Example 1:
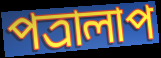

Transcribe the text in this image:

পত্ৰালাপ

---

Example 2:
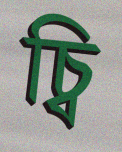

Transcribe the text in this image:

চ্বি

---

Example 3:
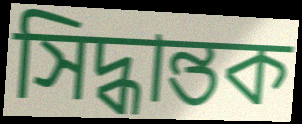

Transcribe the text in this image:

সিদ্ধান্তক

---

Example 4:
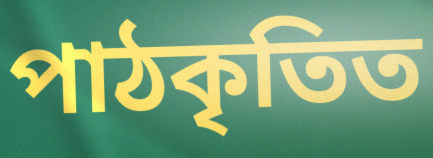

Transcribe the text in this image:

পাঠকৃতিত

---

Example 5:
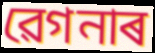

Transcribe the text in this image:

ৱেগনাৰ